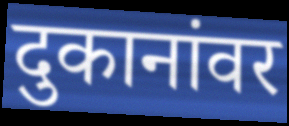
दुकानांवर